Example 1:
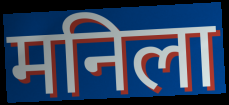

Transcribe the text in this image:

मनिला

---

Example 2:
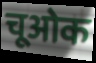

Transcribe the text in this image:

चूओक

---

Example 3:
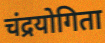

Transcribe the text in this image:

चंद्रयोगिता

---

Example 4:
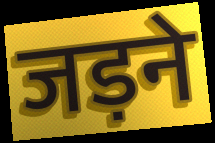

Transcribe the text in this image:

जड़ने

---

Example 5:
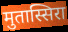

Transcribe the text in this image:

मुतास्सिरा